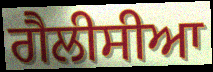
ਗੈਲੀਸੀਆ